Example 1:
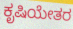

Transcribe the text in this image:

ಕೃಷಿಯೇತರ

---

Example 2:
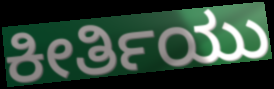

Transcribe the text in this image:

ಕೀರ್ತಿಯು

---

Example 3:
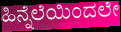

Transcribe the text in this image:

ಹಿನ್ನೆಲೆಯಿಂದಲೇ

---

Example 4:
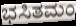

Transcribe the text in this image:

ಭಸಿತಮಂ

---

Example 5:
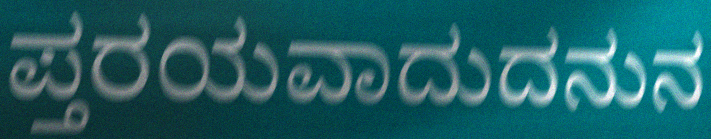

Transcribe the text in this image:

ಪ್ತರಯವಾದುದನುನ